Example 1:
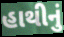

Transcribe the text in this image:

હાથીનું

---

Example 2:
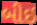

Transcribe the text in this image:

બીઇ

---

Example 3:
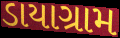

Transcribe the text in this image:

ડાયાગ્રામ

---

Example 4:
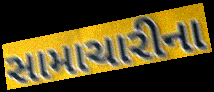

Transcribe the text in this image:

સામાચારીના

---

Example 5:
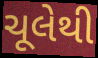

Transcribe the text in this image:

ચૂલેથી